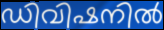
ഡിവിഷനിൽ